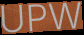
UPW